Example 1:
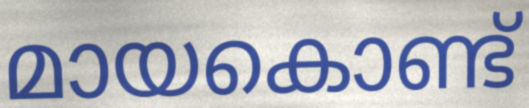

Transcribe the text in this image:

മായകൊണ്ട്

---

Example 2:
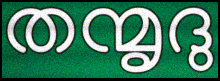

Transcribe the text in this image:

തന്മൃദു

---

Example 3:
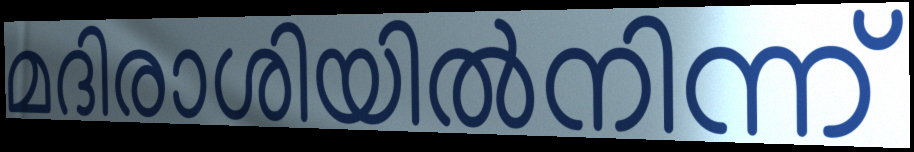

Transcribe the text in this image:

മദിരാശിയിൽനിന്ന്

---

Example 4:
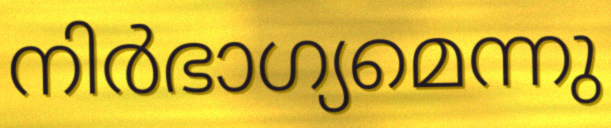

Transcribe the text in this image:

നിർഭാഗ്യമെന്നു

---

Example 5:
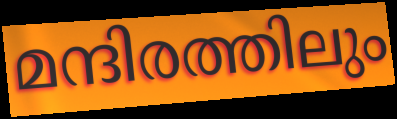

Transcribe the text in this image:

മന്ദിരത്തിലും